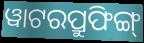
ୱାଟରପ୍ରୁଫିଙ୍ଗ୍